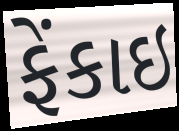
ફેંકાઇ